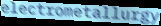
electrometallurgy